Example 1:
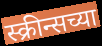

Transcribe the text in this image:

स्क्रीन्सच्या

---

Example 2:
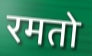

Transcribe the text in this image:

रमतो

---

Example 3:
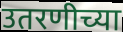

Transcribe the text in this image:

उतरणीच्या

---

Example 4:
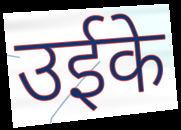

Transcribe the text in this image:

उईके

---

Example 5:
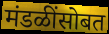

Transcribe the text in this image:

मंडळींसोबत